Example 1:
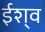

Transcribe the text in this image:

ईश्व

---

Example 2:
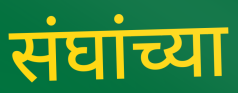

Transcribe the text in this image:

संघांच्या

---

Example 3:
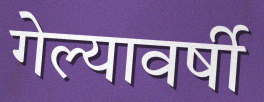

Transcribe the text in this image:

गेल्यावर्षी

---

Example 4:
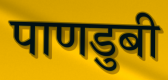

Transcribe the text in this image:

पाणडुबी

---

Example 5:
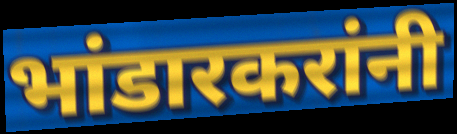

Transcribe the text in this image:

भांडारकरांनी